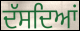
ਦੱਸਦਿਆਂ